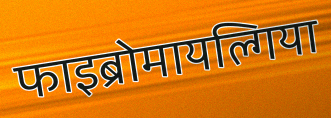
फाइब्रोमायल्गिया